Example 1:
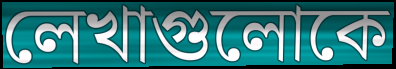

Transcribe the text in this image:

লেখাগুলোকে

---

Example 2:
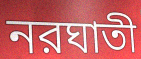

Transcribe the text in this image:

নরঘাতী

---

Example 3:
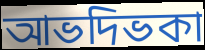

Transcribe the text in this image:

আভদিভকা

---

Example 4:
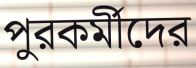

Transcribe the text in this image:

পুরকর্মীদের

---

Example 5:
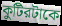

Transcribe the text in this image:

কুটিরটাকে